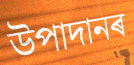
উপাদানৰ